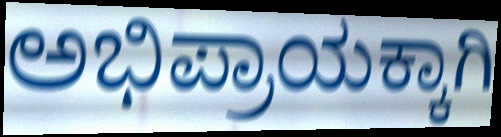
ಅಭಿಪ್ರಾಯಕ್ಕಾಗಿ